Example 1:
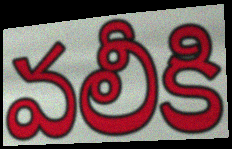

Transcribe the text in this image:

వలీకి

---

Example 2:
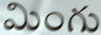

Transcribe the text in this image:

మింగు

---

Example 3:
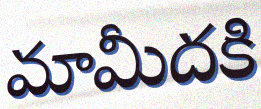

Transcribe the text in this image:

మామీదకి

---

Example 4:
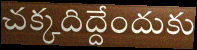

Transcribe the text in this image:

చక్కదిద్దేందుకు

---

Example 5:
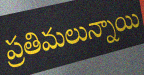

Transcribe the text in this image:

ప్రతిమలున్నాయి